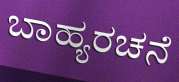
ಬಾಹ್ಯರಚನೆ